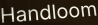
Handloom